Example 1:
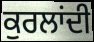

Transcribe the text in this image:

ਕੁਰਲਾਂਦੀ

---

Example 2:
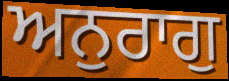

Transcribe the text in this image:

ਅਨੁਰਾਗੁ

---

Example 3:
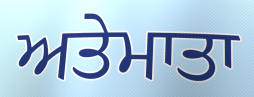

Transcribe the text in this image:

ਅਤੇਮਾਤਾ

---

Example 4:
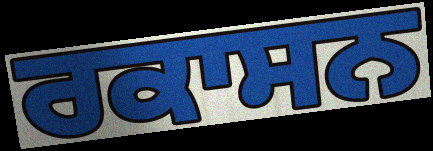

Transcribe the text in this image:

ਰਕਾਸਨ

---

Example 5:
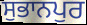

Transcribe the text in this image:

ਸੁਭਾਨਪੁਰ